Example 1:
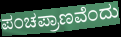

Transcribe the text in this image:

ಪಂಚಪ್ರಾಣವೆಂದು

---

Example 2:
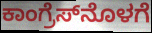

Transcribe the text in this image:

ಕಾಂಗ್ರೆಸ್‌ನೊಳಗೆ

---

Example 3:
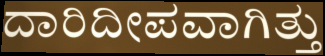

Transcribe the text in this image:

ದಾರಿದೀಪವಾಗಿತ್ತು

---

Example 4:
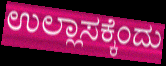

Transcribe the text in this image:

ಉಲ್ಲಾಸಕ್ಕೆಂದು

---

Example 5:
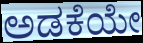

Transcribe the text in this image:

ಅಡಕೆಯೇ